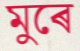
মুৰে